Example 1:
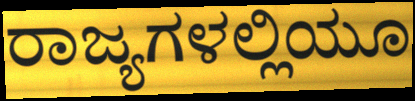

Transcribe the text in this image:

ರಾಜ್ಯಗಳಲ್ಲಿಯೂ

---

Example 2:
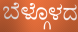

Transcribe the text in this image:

ಬೆಳ್ಗೊಳದ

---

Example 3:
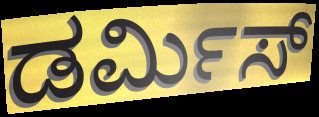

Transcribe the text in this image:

ಡರ್ಮಿಸ್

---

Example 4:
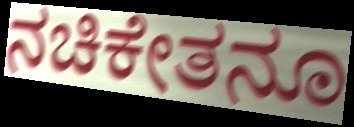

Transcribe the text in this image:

ನಚಿಕೇತನೂ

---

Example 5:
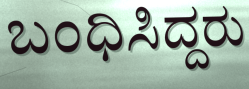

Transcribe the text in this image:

ಬಂಧಿಸಿದ್ದರು